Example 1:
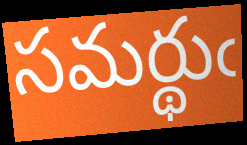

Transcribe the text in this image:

సమర్థుఁ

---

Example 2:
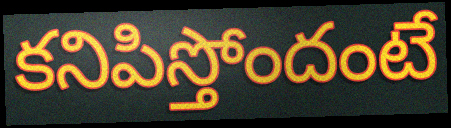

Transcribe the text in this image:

కనిపిస్తోందంటే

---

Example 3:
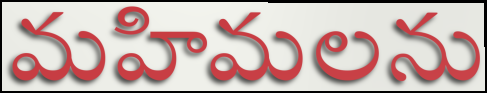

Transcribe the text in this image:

మహిమలను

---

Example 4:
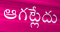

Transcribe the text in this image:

ఆగట్లేదు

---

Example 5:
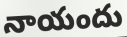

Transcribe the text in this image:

నాయందు